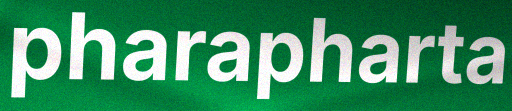
pharapharta